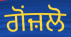
ਗੋਂਜ਼ਲੋ